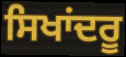
ਸਿਖਾਂਦਰੂ